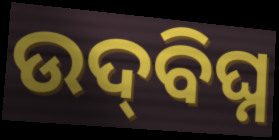
ଉଦ୍‌ବିଘ୍ନ